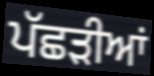
ਪੱਛੜੀਆਂ